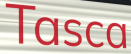
Tasca